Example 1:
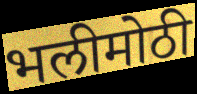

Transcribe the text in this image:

भलीमोठी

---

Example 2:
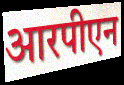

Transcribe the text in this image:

आरपीएन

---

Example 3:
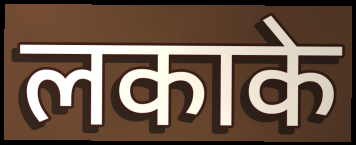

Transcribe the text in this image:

लकाके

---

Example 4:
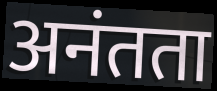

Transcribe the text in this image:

अनंतता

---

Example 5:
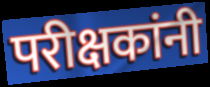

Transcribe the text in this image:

परीक्षकांनी